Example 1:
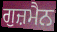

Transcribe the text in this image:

ਗੁਜ਼ਮੈਨ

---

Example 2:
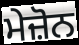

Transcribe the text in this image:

ਮੇਜ਼ੋਨ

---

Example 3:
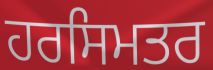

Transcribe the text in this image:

ਹਰਸਿਮਤਰ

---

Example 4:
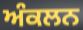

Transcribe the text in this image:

ਅੰਕਲਨ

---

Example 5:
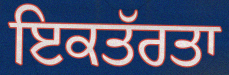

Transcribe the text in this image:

ਇਕਤੱਰਤਾ